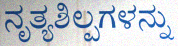
ನೃತ್ಯಶಿಲ್ಪಗಳನ್ನು